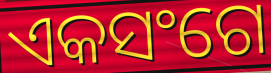
ଏକସଂଗେ